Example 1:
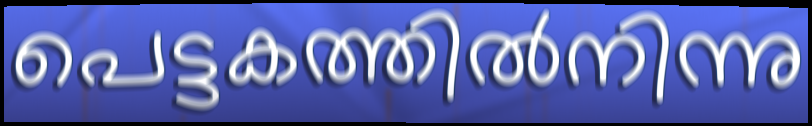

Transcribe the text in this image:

പെട്ടകത്തിൽനിന്നു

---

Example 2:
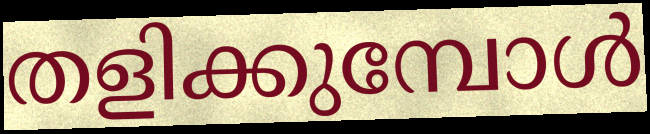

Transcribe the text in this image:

തളിക്കുമ്പോൾ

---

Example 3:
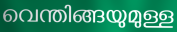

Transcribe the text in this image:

വെന്തിങ്ങയുമുള്ള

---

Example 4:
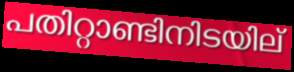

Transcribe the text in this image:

പതിറ്റാണ്ടിനിടയില്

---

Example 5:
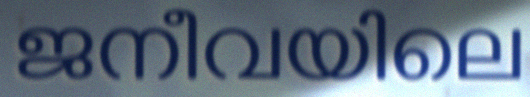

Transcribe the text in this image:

ജനീവയിലെ